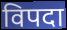
विपदा